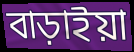
বাড়াইয়া